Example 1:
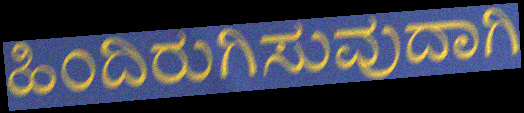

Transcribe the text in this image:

ಹಿಂದಿರುಗಿಸುವುದಾಗಿ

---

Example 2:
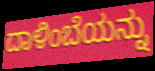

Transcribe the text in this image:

ದಾಳಿಂಬೆಯನ್ನು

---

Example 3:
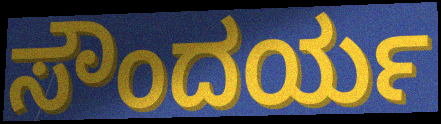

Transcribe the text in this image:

ಸೌಂದರ್ಯ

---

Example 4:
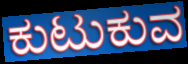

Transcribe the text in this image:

ಕುಟುಕುವ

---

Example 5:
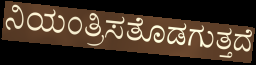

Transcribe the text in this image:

ನಿಯಂತ್ರಿಸತೊಡಗುತ್ತದೆ